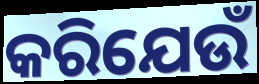
କରିଯେଉଁ